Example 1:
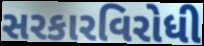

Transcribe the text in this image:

સરકારવિરોધી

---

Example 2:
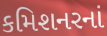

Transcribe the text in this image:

કમિશનરનાં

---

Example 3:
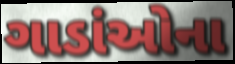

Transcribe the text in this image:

ગાડાંઓના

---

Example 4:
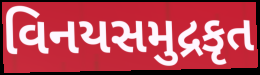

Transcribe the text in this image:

વિનયસમુદ્રકૃત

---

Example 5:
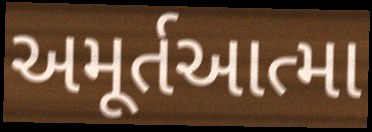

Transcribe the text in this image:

અમૂર્તઆત્મા